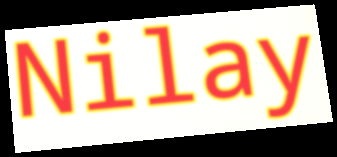
Nilay